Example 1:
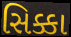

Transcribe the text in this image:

સિક્કા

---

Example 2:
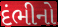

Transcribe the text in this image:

દંભીનો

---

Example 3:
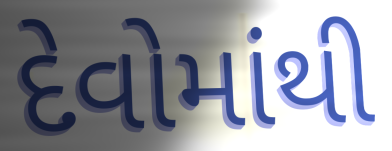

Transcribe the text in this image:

દેવોમાંથી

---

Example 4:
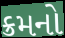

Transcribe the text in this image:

ક્રમનો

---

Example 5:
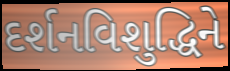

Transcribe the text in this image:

દર્શનવિશુદ્ધિને